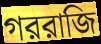
গররাজি